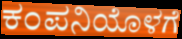
ಕಂಪನಿಯೊಳಗೆ